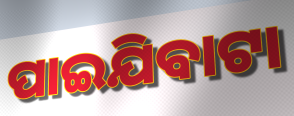
ପାଇଯିବାଟା